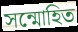
সন্মোহিত